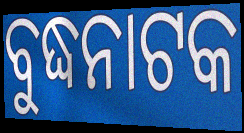
ବୁଦ୍ଧନାଟକ